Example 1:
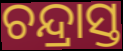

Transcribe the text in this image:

ଚନ୍ଦ୍ରାସ୍ତ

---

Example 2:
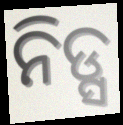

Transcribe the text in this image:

ନିଡ୍ସ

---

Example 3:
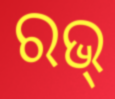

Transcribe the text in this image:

ରଭ୍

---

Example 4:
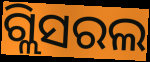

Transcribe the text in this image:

ଗ୍ଲିସରଲ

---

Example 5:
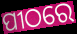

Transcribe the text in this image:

ପୀଠରେ